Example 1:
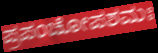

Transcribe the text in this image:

ಪ್ರಪಂಚೋಪಶಮಃ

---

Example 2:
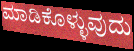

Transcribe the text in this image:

ಮಾಡಿಕೊಳ್ಳುವುದು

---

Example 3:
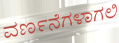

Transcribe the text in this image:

ವರ್ಣನೆಗಳಾಗಲಿ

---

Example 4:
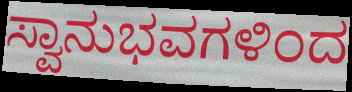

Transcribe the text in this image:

ಸ್ವಾನುಭವಗಳಿಂದ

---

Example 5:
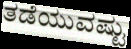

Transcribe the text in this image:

ತಡೆಯುವಷ್ಟು